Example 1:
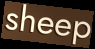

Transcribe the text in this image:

sheep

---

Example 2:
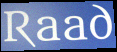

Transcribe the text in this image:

Raad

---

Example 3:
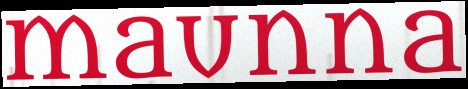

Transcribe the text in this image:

maunna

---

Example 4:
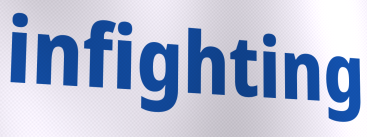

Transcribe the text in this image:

infighting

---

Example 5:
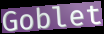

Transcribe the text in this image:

Goblet